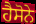
ਹੈਸੋਨੇ